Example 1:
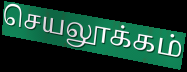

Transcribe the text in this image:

செயலூக்கம்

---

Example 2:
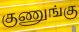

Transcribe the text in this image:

குணுங்கு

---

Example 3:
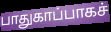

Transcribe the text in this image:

பாதுகாப்பாகச்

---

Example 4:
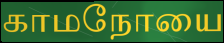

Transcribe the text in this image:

காமநோயை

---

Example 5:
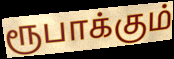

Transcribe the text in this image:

ரூபாக்கும்